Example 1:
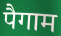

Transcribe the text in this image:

पैगाम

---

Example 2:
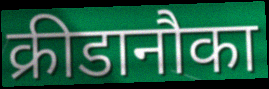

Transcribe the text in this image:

क्रीडानौका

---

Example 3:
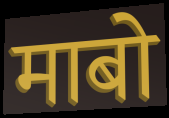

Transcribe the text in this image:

माबो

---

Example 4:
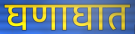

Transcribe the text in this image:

घणाघात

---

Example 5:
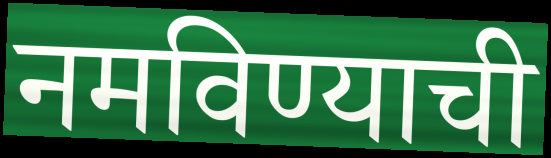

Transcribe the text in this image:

नमविण्याची